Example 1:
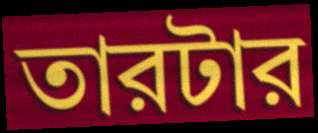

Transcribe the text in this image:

তারটার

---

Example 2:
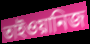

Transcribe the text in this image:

তাইওয়ানিজ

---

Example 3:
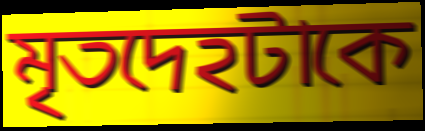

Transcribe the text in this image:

মৃতদেহটাকে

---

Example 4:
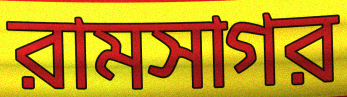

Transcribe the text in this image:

রামসাগর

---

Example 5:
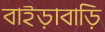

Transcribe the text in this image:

বাইড়াবাড়ি